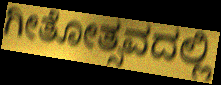
ಗೀತೋತ್ಸವದಲ್ಲಿ